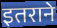
इतराने